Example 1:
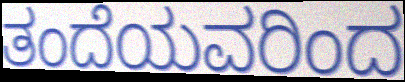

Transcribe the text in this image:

ತಂದೆಯವರಿಂದ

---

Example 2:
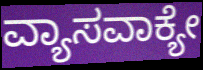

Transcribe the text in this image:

ವ್ಯಾಸವಾಕ್ಯೇ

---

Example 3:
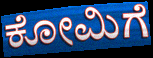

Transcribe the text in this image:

ಕೋಮಿಗೆ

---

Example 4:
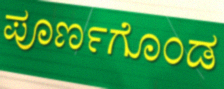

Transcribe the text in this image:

ಪೂರ್ಣಗೊಂಡ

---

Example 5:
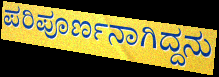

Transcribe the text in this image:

ಪರಿಪೂರ್ಣನಾಗಿದ್ದನು